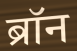
ब्रॉन